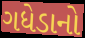
ગધેડાનો